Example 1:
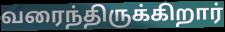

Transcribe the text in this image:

வரைந்திருக்கிறார்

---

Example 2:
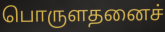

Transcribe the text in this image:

பொருளதனைச்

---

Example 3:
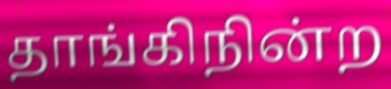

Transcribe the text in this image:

தாங்கிநின்ற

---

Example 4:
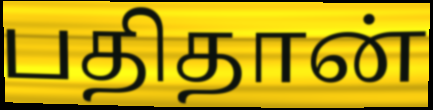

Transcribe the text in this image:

பதிதான்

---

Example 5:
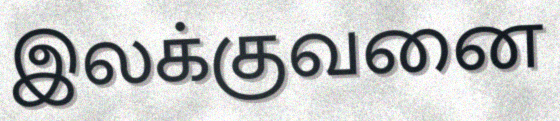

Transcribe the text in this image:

இலக்குவனை